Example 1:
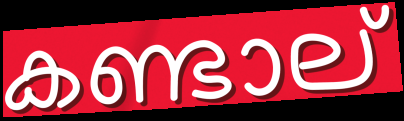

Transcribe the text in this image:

കണ്ടാല്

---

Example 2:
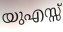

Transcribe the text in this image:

യുഎസ്സ്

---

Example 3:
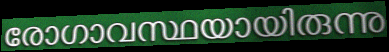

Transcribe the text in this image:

രോഗാവസ്ഥയായിരുന്നു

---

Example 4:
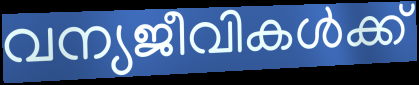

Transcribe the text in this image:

വന്യജീവികൾക്ക്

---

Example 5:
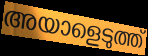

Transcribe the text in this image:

അയാളെടുത്ത്